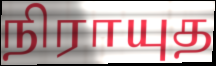
நிராயுத